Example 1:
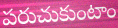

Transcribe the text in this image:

పరుచుకుంటాం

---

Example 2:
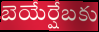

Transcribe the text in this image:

బెయేర్షేబకు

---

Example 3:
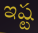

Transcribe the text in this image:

ఇష్ట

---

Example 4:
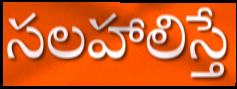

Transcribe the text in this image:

సలహాలిస్తే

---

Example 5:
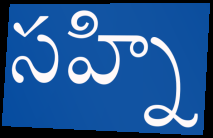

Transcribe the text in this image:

సహ్ని